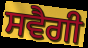
ਸਵੈਗੀ